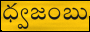
ధ్వజంబు